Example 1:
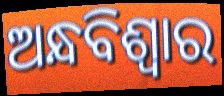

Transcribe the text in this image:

ଅନ୍ଧବିଶ୍ୱାର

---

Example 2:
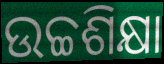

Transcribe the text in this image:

ଉଚ୍ଚଶିକ୍ଷା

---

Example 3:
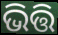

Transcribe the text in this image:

ଭିତ୍ତି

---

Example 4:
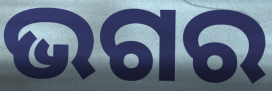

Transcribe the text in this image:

ଭଗର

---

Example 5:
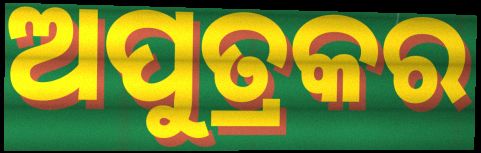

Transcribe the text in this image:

ଅପୁତ୍ରକର